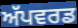
ਅੱਪਵਰਡ